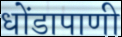
धोंडापाणी